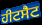
ਹੀਟਸੈਟ